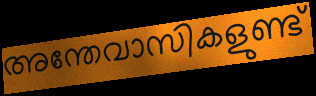
അന്തേവാസികളുണ്ട്